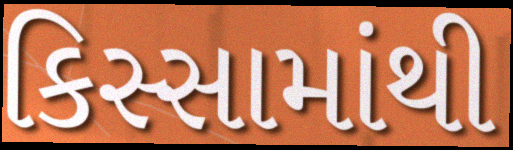
કિસ્સામાંથી